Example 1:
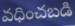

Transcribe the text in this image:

వధించబడి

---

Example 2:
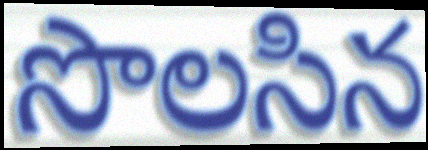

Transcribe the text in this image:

సొలసిన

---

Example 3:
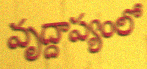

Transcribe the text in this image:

వృద్దాప్యంలో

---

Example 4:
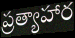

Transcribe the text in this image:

ప్రత్యాహార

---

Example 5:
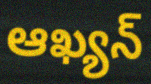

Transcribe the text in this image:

ఆఖ్యన్